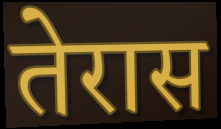
तेरास